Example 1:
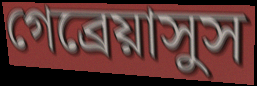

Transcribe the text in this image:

গেব্রেয়াসুস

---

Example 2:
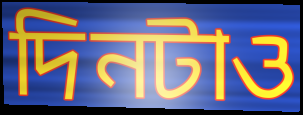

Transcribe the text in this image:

দিনটাও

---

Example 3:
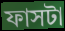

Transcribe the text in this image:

ফাসটা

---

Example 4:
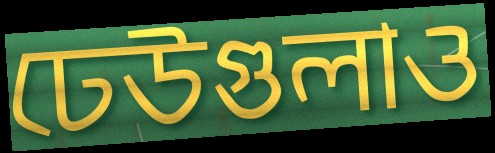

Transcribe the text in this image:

ঢেউগুলাও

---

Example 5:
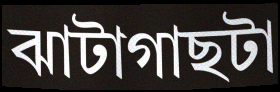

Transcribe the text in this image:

ঝাটাগাছটা